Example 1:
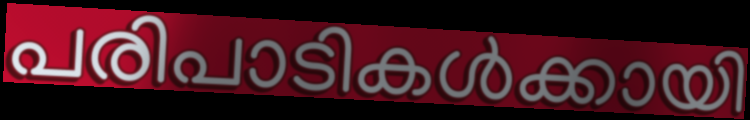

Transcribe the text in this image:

പരിപാടികൾക്കായി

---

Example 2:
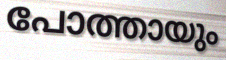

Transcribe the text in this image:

പോത്തായും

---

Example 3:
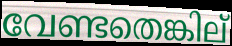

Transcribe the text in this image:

വേണ്ടതെങ്കില്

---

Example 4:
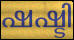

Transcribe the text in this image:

ഷഷ്ടി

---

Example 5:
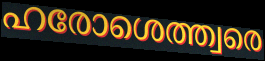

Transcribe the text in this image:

ഹരോശെത്ത്വരെ